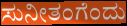
ಸುನೀತಂಗೆಂದು